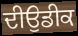
ਦੀਉਡੀਕ